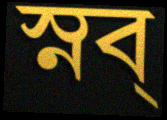
স্নব্